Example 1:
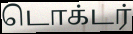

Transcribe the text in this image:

டொக்டர்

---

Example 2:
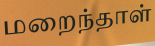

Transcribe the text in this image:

மறைந்தாள்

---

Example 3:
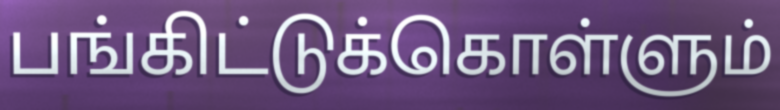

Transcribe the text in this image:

பங்கிட்டுக்கொள்ளும்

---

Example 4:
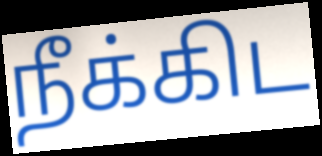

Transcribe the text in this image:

நீக்கிட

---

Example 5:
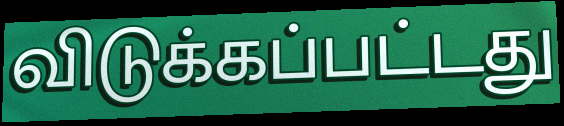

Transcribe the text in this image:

விடுக்கப்பட்டது